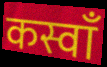
कस्वाँ